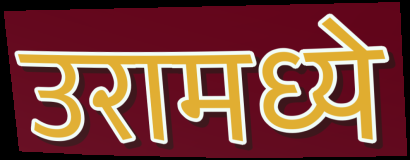
उरामध्ये